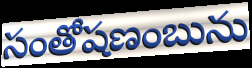
సంతోషణంబును